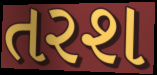
તરશ